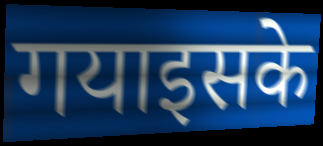
गयाइसके